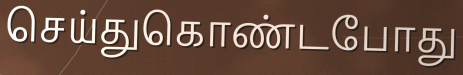
செய்துகொண்டபோது